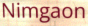
Nimgaon